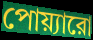
পোয়্যারো